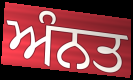
ਅੰਨਤ